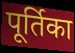
पूर्तिका